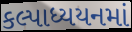
કલ્પાધ્યયનમાં